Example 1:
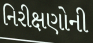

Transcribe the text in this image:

નિરીક્ષણોની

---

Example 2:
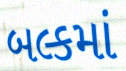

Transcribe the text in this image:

બલ્કમાં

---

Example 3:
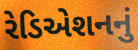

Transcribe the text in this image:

રેડિએશનનું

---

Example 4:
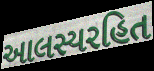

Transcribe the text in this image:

આલસ્યરહિત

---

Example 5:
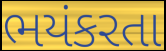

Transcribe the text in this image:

ભયંકરતા